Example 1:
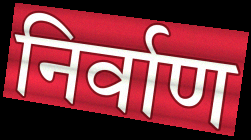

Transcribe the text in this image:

निर्वाण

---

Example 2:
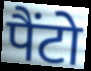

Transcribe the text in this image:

पैंटो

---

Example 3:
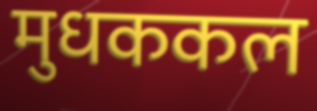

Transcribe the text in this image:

मुधककल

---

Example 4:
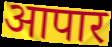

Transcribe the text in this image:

आपार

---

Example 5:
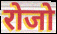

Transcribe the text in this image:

रोजो